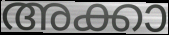
അക്കാ